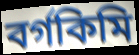
বৰ্গকিমি